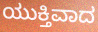
ಯುಕ್ತಿವಾದ